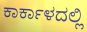
ಕಾರ್ಕಾಳದಲ್ಲಿ